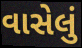
વાસેલું